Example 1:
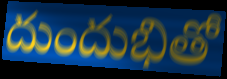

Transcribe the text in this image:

దుందుభితో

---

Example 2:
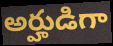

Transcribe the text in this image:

అర్హుడిగా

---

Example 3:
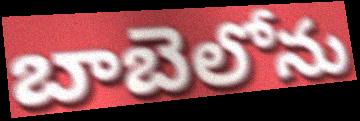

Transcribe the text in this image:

బాబెలోను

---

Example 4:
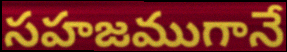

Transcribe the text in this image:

సహజముగానే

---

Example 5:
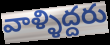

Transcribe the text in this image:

వాళ్ళిద్దరు